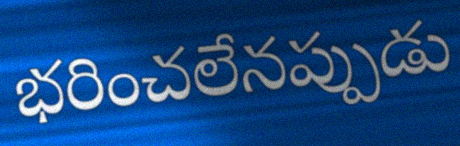
భరించలేనప్పుడు